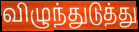
விழுந்துடுத்து